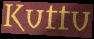
Kuttu